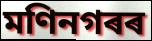
মণিনগৰৰ